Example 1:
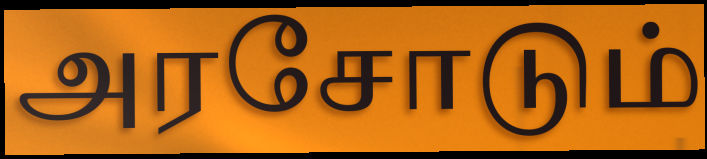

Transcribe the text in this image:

அரசோடும்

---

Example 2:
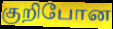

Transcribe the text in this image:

குறிபோன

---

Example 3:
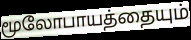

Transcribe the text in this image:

மூலோபாயத்தையும்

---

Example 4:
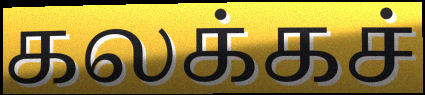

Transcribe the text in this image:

கலக்கச்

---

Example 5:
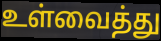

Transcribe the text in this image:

உள்வைத்து